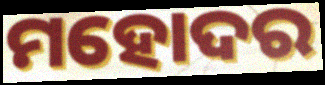
ମହୋଦର